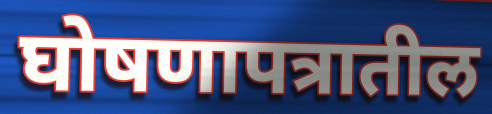
घोषणापत्रातील